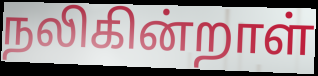
நலிகின்றாள்